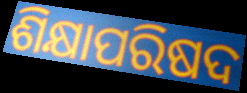
ଶିକ୍ଷାପରିଷଦ